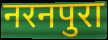
नरनपुरा